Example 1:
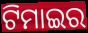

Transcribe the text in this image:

ଟିମାଇର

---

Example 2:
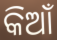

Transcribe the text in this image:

କିଆଁ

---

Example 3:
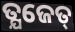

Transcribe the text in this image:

ତ୍ଯଜେତ୍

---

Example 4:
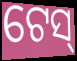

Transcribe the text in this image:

ଟେସ୍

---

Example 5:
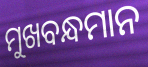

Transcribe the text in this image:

ମୁଖବନ୍ଧମାନ